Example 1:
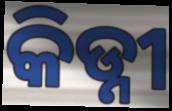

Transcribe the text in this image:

କିଡ୍ନୀ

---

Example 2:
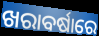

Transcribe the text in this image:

ଖରାବର୍ଷାରେ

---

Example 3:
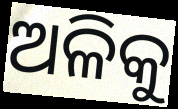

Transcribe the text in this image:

ଅଳିକୁ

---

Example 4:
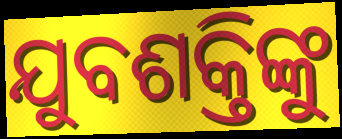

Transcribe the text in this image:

ଯୁବଶକ୍ତିଙ୍କୁ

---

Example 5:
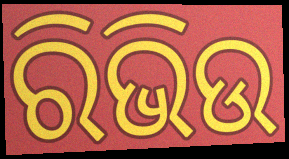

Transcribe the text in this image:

ରିଭିଉ